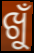
ଖୁଁ